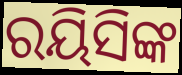
ରୟିସିଙ୍କ